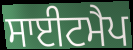
ਸਾਈਟਮੈਪ